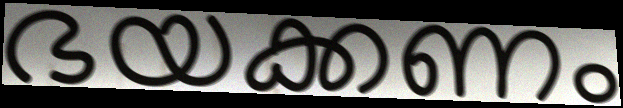
ഭയക്കണം